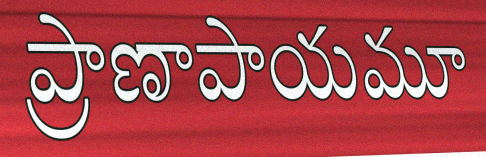
ప్రాణాపాయమూ